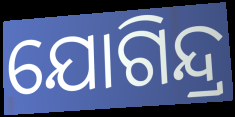
ଯୋଗିନ୍ଦ୍ର